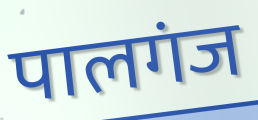
पालगंज